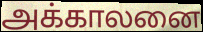
அக்காலனை